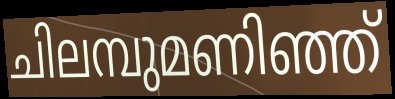
ചിലമ്പുമണിഞ്ഞ്